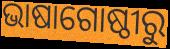
ଭାଷାଗୋଷ୍ଠୀରୁ